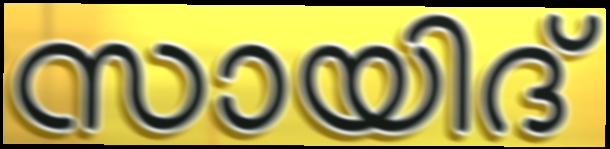
സായിദ്